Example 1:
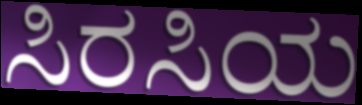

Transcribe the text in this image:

ಸಿರಸಿಯ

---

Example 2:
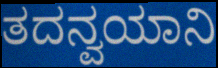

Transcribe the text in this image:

ತದನ್ವಯಾನಿ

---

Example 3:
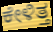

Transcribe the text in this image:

ಕೇಳಿತ್ತ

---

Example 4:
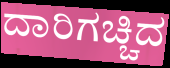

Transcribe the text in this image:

ದಾರಿಗಚ್ಚಿದ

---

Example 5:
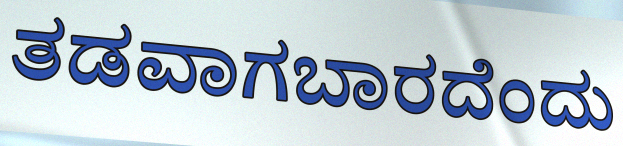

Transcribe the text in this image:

ತಡವಾಗಬಾರದೆಂದು